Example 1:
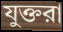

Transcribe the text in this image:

যুক্তরা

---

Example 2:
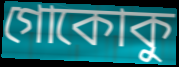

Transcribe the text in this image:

গোকোকু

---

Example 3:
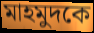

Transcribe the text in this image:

মাহমুদকে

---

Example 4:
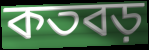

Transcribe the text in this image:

কতবড়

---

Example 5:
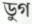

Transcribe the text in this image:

ডুগ